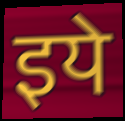
इये